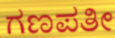
ಗಣಪತೀ